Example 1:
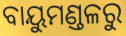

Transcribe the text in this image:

ବାୟୁମଣ୍ଡଳରୁ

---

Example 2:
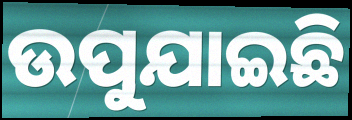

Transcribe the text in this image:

ଉପୁଯାଇଛି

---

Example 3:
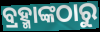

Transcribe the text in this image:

ବ୍ରହ୍ମାଙ୍କଠାରୁ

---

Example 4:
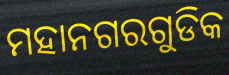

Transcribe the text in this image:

ମହାନଗରଗୁଡିକ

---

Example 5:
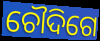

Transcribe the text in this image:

ଚୌଦିଗେ